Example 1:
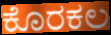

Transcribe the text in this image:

ಕೊರಕಲ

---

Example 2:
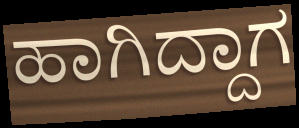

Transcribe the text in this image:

ಹಾಗಿದ್ದಾಗ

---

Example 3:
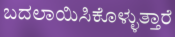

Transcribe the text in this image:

ಬದಲಾಯಿಸಿಕೊಳ್ಳುತ್ತಾರೆ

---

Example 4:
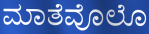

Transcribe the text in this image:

ಮಾತೆವೊಲೊ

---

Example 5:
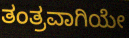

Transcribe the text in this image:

ತಂತ್ರವಾಗಿಯೇ